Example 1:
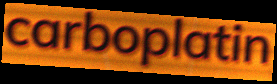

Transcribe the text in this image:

carboplatin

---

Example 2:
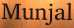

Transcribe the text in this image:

Munjal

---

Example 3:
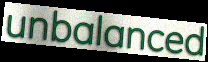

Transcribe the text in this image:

unbalanced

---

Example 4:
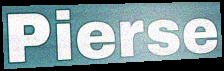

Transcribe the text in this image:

Pierse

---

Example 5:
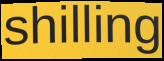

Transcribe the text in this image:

shilling